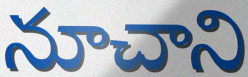
నూచాని